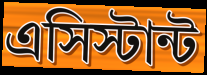
এসিস্টান্ট